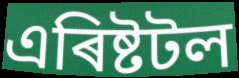
এৰিষ্টটল